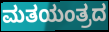
ಮತಯಂತ್ರದ